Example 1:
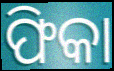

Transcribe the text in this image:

ଫିକା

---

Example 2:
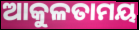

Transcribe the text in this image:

ଆକୁଳତାମୟ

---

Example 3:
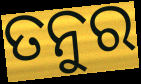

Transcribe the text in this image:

ତନୁର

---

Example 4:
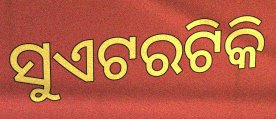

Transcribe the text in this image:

ସୁଏଟରଟିକି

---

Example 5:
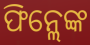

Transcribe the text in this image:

ଫିନ୍ଲେଙ୍କ